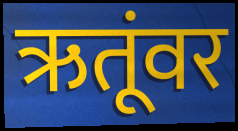
ऋतूंवर